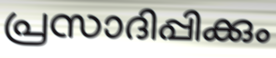
പ്രസാദിപ്പിക്കും